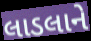
લાડલાને